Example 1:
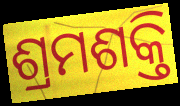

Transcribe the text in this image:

ଶ୍ରମଶକ୍ତି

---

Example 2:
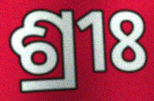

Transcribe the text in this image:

ଶ୍ରୀଃ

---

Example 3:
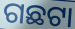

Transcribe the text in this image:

ଗଛଟା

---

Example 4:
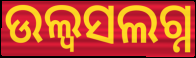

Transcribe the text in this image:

ଉଲ୍ୱସଲଗ୍ନ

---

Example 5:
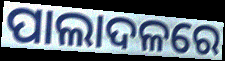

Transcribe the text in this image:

ପାଲାଦଳରେ